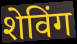
शेविंग